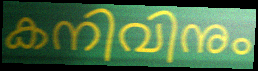
കനിവിനും